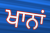
ਖਾਨਾਂ